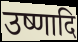
उष्णादि